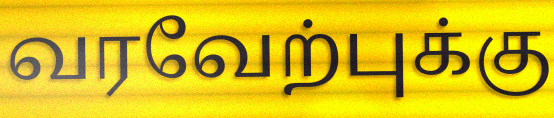
வரவேற்புக்கு